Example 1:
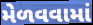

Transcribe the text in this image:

મેળવવામાં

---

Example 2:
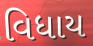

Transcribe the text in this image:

વિધાય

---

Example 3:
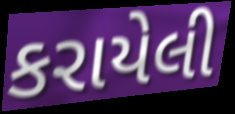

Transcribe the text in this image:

કરાયેલી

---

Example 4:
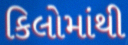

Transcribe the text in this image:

કિલોમાંથી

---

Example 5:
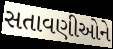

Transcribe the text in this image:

સતાવણીઓને